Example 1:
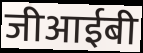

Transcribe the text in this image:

जीआईबी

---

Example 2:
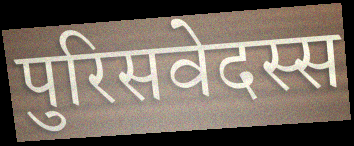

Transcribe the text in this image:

पुरिसवेदस्स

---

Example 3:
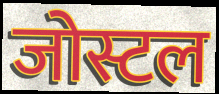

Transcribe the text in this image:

जोस्टल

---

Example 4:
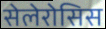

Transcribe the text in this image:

सेलेरोसिस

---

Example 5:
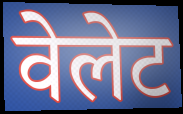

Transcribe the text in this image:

वेलेट